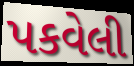
પકવેલી